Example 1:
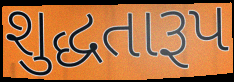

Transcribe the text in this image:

શુદ્ધતારૂપ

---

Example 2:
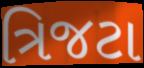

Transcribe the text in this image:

ત્રિજટા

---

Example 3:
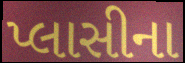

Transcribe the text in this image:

પ્લાસીના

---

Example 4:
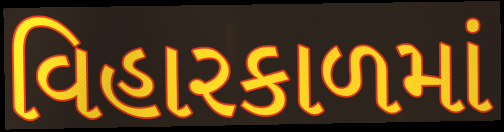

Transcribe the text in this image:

વિહારકાળમાં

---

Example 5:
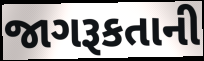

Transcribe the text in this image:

જાગરૂકતાની